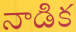
నాడిక